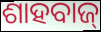
ଶାହବାଜ୍